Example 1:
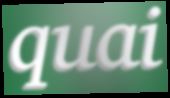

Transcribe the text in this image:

quai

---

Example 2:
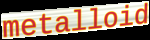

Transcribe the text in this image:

metalloid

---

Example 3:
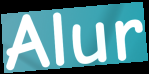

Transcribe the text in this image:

Alur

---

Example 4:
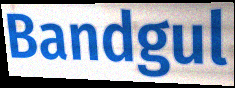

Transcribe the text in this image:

Bandgul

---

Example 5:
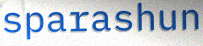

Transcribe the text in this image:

sparashun